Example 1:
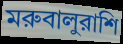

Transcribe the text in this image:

মরুবালুরাশি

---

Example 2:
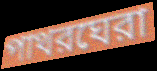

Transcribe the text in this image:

পাথরঘেরা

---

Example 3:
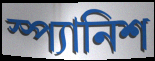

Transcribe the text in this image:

স্প্যানিশ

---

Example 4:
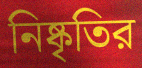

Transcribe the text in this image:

নিষ্কৃতির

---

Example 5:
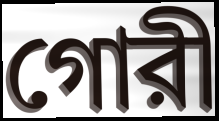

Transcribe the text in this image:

গোরী